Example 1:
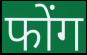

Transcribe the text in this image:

फोंग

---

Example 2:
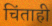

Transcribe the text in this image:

चिंताही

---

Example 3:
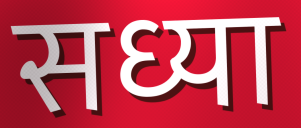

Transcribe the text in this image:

सध्या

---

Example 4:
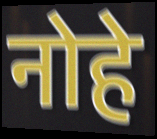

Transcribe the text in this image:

नोहे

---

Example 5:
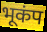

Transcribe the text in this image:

भूकंप